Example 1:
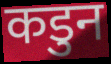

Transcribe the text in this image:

कडुन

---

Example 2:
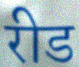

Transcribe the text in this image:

रीड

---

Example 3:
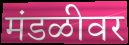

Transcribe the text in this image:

मंडळीवर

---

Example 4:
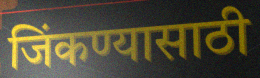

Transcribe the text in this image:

जिंकण्यासाठी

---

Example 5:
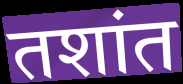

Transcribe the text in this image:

तशांत